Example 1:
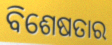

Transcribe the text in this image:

ବିଶେଷତାର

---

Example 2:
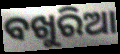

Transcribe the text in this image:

ବଖୁରିଆ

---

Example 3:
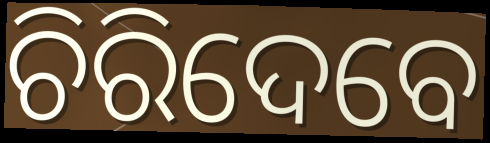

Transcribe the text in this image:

ଚିରିଦେବେ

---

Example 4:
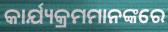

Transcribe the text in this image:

କାର୍ଯ୍ୟକ୍ରମମାନଙ୍କରେ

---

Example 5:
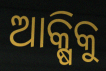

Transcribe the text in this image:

ଆକ୍ଷିକୁ